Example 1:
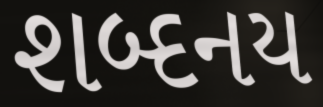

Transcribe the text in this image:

શબ્દનય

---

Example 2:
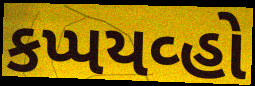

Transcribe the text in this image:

કપ્પયવ્હો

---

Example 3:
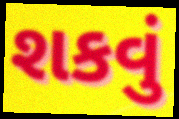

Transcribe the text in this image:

શકવું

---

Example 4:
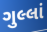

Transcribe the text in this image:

ગુલ્લાં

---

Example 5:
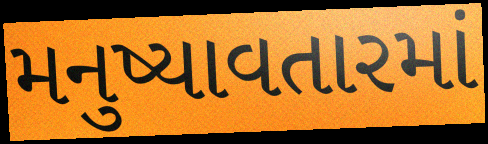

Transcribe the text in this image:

મનુષ્યાવતારમાં